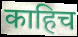
काहिच